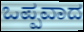
ಒಪ್ಪವಾದ